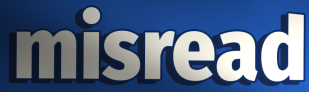
misread